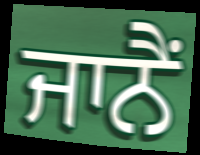
ਜਾਨੈਂ